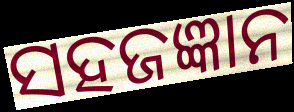
ସହଜଜ୍ଞାନ